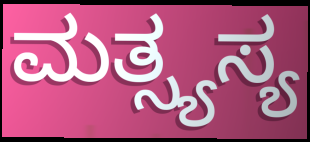
ಮತ್ಸ್ಯಸ್ಯ